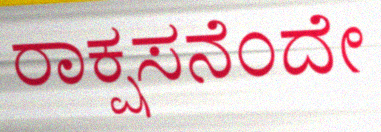
ರಾಕ್ಷಸನೆಂದೇ